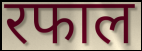
रफाल